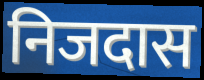
निजदास